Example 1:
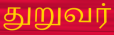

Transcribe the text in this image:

துறுவர்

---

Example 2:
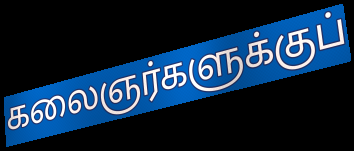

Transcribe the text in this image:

கலைஞர்களுக்குப்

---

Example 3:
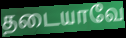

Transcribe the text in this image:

தடையாவே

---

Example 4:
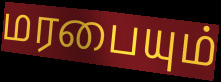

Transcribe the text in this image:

மரபையும்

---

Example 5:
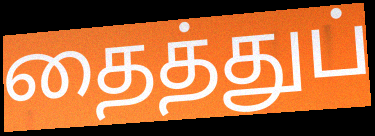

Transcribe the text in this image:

தைத்துப்